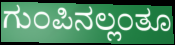
ಗುಂಪಿನಲ್ಲಂತೂ